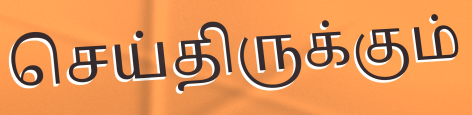
செய்திருக்கும்